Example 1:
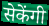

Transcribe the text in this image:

सेकेंगी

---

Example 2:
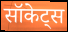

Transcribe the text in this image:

सॉकेट्स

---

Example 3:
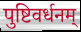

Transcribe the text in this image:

पुष्टिवर्धनम्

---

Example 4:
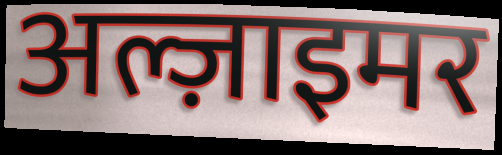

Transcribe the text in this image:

अल्ज़ाइमर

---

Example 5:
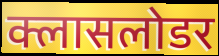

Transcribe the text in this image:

क्लासलोडर